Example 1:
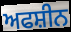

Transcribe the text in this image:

ਅਫਸ਼ੀਨ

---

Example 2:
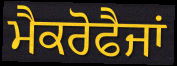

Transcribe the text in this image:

ਮੈਕਰੋਫੈਜਾਂ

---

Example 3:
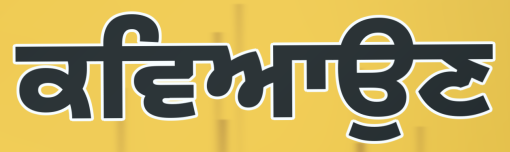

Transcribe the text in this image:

ਕਵਿਆਉਣ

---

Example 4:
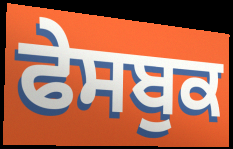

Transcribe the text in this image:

ਫੇਸਬੁਕ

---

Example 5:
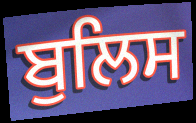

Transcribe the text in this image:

ਬੁਲਿਸ